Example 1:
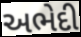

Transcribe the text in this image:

અભેદી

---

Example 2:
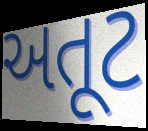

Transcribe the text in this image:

અતૂટ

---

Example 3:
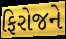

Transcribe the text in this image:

ફિરોજને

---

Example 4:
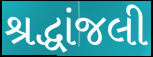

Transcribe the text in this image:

શ્રદ્ધાંજલી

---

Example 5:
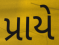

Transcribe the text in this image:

પ્રાયે